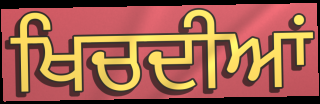
ਖਿਚਦੀਆਂ